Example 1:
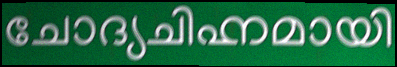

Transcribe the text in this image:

ചോദ്യചിഹ്നമായി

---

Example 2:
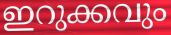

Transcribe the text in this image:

ഇറുക്കവും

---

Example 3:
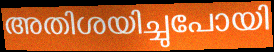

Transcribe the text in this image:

അതിശയിച്ചുപോയി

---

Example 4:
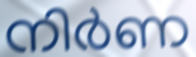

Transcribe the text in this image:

നിർണ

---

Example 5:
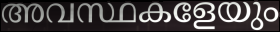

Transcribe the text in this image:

അവസ്ഥകളേയും